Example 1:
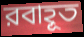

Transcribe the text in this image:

রবাহূত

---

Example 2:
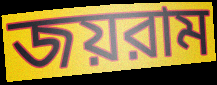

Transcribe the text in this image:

জয়রাম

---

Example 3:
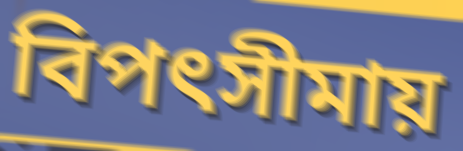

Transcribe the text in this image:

বিপৎসীমায়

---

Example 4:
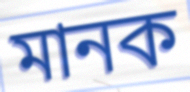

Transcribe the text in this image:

মানক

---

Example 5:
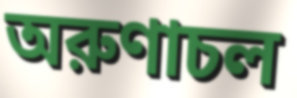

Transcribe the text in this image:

অরুণাচল